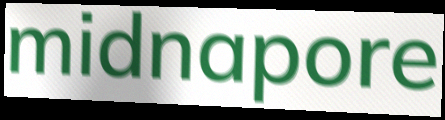
midnapore